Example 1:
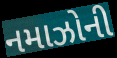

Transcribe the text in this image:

નમાઝોની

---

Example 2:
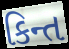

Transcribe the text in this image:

કિન્ત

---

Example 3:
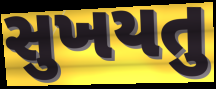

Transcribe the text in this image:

સુખયતુ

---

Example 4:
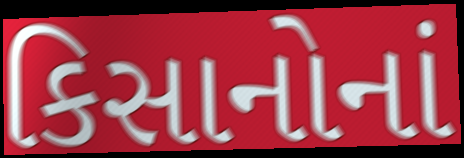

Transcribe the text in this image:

કિસાનોનાં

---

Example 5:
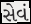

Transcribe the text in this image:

સેવં